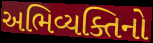
અભિવ્યક્તિનો